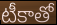
టీకాతో